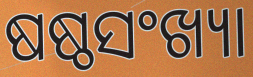
ଷଷ୍ଠସଂଖ୍ୟା